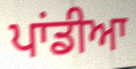
ਪਾਂਡੀਆ